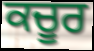
ਕਚੂਰ